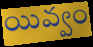
యివ్వం